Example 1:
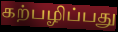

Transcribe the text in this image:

கற்பழிப்பது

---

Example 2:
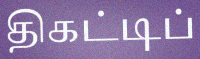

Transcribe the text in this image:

திகட்டிப்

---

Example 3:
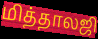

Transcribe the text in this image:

மித்தாலஜி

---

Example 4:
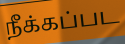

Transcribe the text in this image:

நீக்கப்பட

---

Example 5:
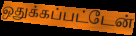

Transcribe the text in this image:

ஒதுக்கப்பட்டேன்